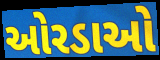
ઓરડાઓ